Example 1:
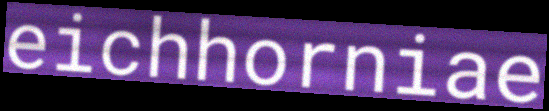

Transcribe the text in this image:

eichhorniae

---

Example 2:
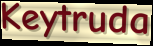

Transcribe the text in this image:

Keytruda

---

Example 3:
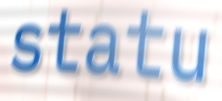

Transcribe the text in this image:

statu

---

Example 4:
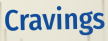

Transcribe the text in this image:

Cravings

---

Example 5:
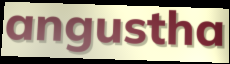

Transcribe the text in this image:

angustha